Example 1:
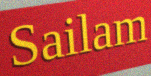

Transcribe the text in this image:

Sailam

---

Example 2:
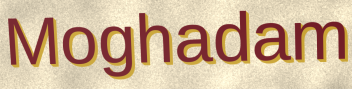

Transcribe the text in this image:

Moghadam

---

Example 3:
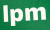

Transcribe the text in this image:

lpm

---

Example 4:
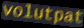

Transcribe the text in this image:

volutpat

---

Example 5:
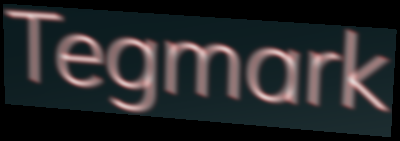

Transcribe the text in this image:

Tegmark